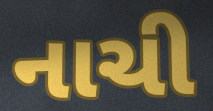
નાચી